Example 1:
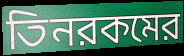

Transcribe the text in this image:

তিনরকমের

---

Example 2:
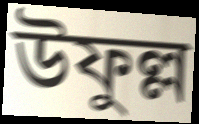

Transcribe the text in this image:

উফুল্ল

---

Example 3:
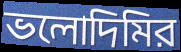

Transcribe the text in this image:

ভলোদিমির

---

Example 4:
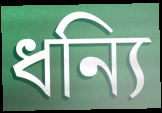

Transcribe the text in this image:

ধন্যি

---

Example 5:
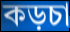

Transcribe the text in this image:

কড়চা